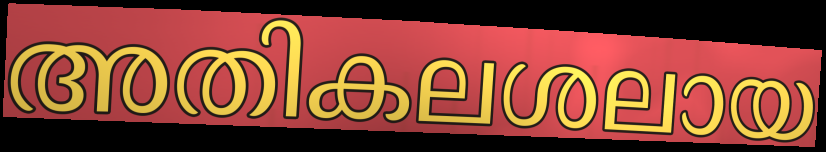
അതികലശലായ